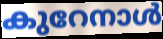
കുറേനാൾ